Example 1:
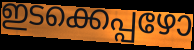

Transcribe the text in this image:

ഇടക്കെപ്പഴോ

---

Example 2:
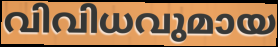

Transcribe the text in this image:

വിവിധവുമായ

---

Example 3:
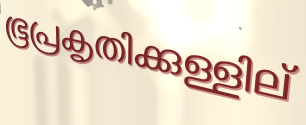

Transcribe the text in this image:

ഭൂപ്രകൃതിക്കുള്ളില്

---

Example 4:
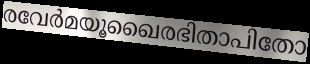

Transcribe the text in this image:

രവേർമയൂഖൈരഭിതാപിതോ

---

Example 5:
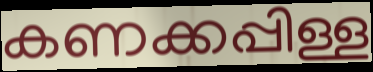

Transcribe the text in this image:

കണക്കപ്പിള്ള